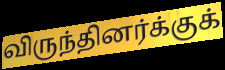
விருந்தினர்க்குக்